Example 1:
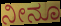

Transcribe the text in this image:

ನೀನೂ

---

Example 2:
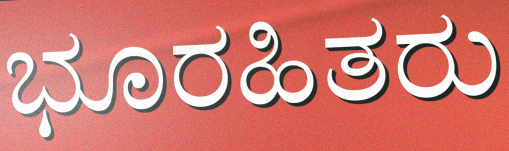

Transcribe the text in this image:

ಭೂರಹಿತರು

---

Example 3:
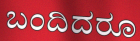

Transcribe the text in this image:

ಬಂದಿದರೂ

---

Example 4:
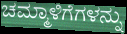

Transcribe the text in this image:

ಚಮ್ಮಾಳಿಗೆಗಳನ್ನು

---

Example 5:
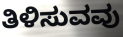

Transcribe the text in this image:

ತಿಳಿಸುವವು